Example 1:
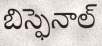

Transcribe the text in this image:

బిస్ఫెనాల్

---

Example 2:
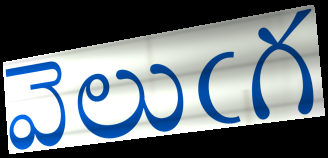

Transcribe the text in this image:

వెలుఁగ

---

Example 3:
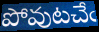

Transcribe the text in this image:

పోవుటచేఁ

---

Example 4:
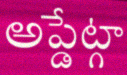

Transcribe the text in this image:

అప్డేట్గా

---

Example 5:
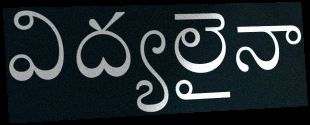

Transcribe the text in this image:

విద్యలైనా